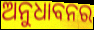
ଅନୁଧାବନର